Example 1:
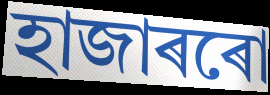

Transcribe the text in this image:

হাজাৰৰো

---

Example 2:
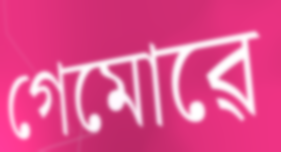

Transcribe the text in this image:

গেমোৱে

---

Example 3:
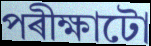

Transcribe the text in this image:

পৰীক্ষাটো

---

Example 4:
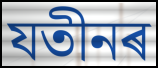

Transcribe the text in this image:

যতীনৰ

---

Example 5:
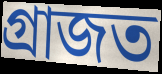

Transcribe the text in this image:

গ্ৰাজত